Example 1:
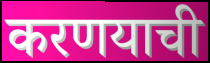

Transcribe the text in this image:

करणयाची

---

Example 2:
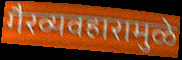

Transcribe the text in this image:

गैरव्यवहारामुळे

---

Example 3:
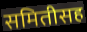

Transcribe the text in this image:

समितीसह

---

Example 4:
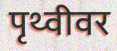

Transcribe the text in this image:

पृथ्वीवर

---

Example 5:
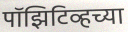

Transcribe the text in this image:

पॉझिटिव्हच्या